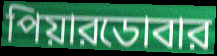
পিয়ারডোবার